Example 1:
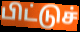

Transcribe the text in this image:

பிட்டுச்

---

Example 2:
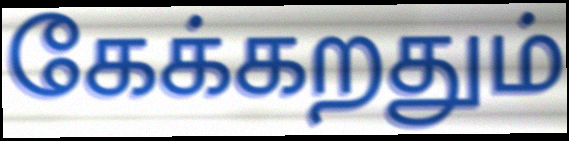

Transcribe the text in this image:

கேக்கறதும்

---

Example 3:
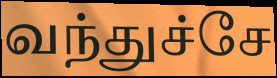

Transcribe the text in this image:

வந்துச்சே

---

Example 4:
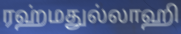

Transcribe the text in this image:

ரஹ்மதுல்லாஹி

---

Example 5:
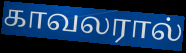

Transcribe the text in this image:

காவலரால்